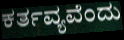
ಕರ್ತವ್ಯವೆಂದು